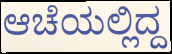
ಆಚೆಯಲ್ಲಿದ್ದ